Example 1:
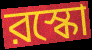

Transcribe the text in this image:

রস্কো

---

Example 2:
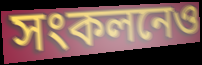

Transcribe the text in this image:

সংকলনেও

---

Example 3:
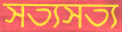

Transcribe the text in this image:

সত্যসত্য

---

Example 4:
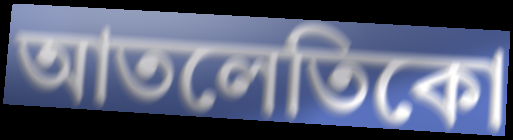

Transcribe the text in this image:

আতলেতিকো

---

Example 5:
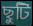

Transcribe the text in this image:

ছুটি